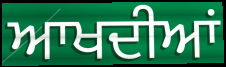
ਆਖਦੀਆਂ